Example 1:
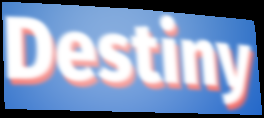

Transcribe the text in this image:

Destiny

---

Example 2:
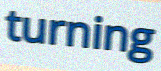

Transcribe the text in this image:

turning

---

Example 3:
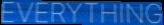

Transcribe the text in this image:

EVERYTHING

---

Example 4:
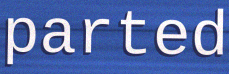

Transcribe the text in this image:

parted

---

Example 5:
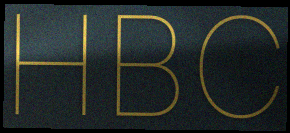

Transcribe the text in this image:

HBC